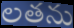
లతను